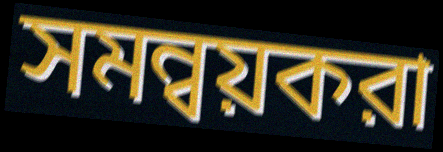
সমন্বয়করা